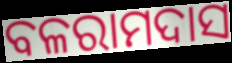
ବଳରାମଦାସ